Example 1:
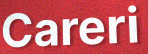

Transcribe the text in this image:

Careri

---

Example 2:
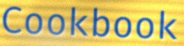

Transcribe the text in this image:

Cookbook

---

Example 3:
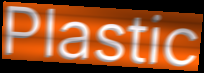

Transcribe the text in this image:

Plastic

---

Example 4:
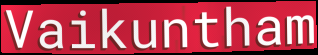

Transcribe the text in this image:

Vaikuntham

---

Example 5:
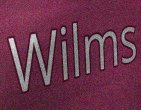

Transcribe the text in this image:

Wilms